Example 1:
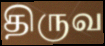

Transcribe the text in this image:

திருவ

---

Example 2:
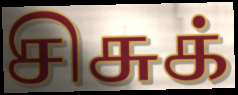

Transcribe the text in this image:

சிசுக்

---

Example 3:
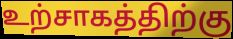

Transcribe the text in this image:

உற்சாகத்திற்கு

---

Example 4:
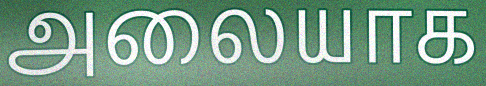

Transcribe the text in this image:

அலையாக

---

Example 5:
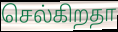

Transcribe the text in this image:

செல்கிறதா